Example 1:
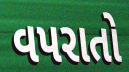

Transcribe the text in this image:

વપરાતો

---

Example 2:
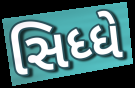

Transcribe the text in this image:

સિધ્ધે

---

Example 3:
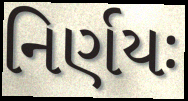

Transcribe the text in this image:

નિર્ણયઃ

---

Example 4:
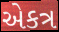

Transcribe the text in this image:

એકત્ર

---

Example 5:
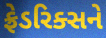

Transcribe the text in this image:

ફ્રેડરિક્સને